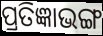
ପ୍ରତିଜ୍ଞାଭଙ୍ଗ